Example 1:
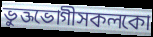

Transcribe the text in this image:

ভুক্তভোগীসকলকো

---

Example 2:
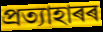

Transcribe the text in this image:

প্ৰত্যাহাৰৰ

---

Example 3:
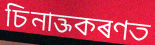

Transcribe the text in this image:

চিনাক্তকৰণত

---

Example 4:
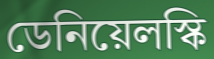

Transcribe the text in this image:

ডেনিয়েলস্কি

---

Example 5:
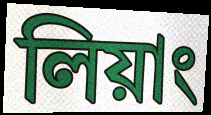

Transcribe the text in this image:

লিয়াং